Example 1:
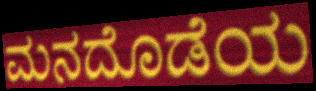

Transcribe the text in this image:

ಮನದೊಡೆಯ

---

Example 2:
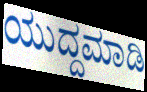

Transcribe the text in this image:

ಯುದ್ದಮಾಡಿ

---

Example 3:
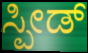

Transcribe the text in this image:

ಸ್ಪೀಡ್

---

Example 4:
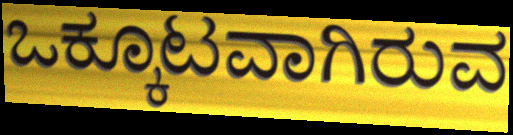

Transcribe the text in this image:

ಒಕ್ಕೂಟವಾಗಿರುವ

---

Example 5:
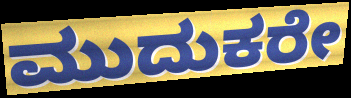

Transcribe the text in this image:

ಮುದುಕರೇ